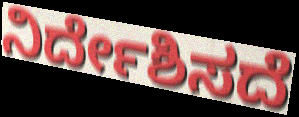
ನಿರ್ದೇಶಿಸದೆ